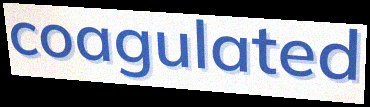
coagulated